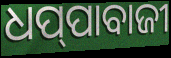
ଧପ୍‌ପାବାଜୀ